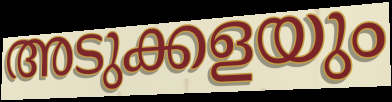
അടുക്കളയും